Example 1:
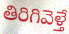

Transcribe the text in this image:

తిరిగివెళ్తే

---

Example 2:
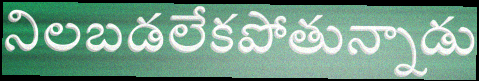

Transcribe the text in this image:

నిలబడలేకపోతున్నాడు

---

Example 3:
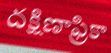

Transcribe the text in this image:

దక్షిణాఫ్రికా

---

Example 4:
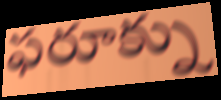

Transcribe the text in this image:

ఫరూక్ను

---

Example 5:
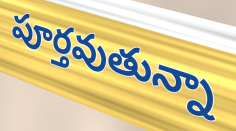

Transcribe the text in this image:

పూర్తవుతున్నా